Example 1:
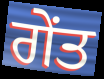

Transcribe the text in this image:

ਗੇਂਤ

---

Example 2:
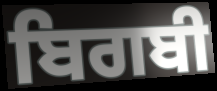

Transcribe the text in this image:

ਬਿਗਬੀ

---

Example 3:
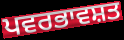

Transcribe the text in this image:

ਪਵਰਭਾਵਸ਼ਤ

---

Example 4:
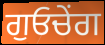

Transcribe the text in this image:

ਗੁਓਚੇਂਗ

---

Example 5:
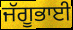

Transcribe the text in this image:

ਜੱਗੂਭਾਈ